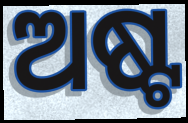
ଅଷ୍ଟ